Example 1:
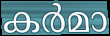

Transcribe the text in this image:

കർമാ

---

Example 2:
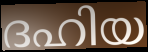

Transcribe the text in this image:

ദഹിയ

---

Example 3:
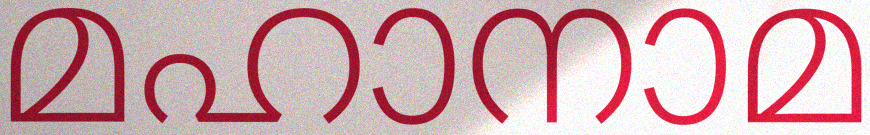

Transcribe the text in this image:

മഹാനാമ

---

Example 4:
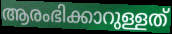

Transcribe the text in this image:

ആരംഭിക്കാറുള്ളത്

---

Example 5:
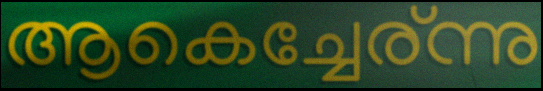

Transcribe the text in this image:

ആകെച്ചേര്ന്നു